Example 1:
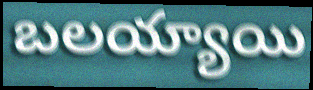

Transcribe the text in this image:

బలయ్యాయి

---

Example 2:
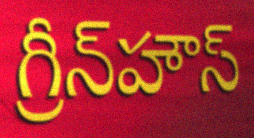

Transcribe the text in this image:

గ్రీన్‌హౌస్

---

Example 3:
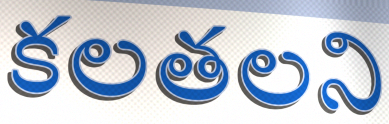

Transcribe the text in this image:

కలతలని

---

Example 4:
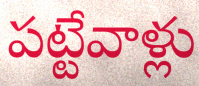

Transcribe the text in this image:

పట్టేవాళ్లు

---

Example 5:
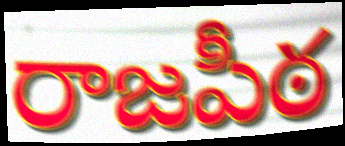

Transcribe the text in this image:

రాజపీఠ